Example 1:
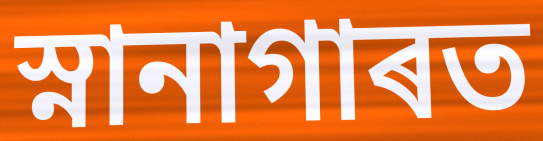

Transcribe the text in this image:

স্নানাগাৰত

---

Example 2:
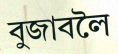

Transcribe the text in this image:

বুজাবলৈ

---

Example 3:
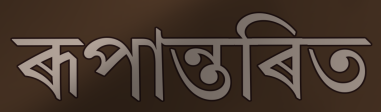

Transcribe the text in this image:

ৰূপান্তৰিত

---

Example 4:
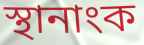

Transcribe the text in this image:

স্থানাংক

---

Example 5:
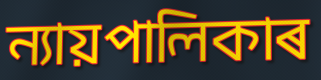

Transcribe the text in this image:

ন্যায়পালিকাৰ